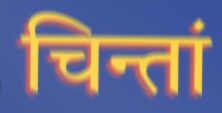
चिन्तां